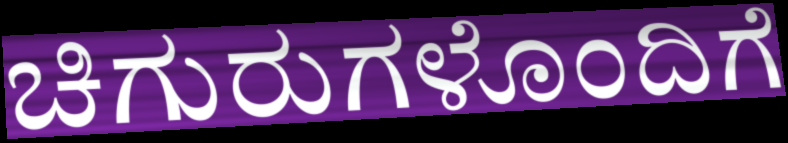
ಚಿಗುರುಗಳೊಂದಿಗೆ